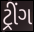
ટ્રીંગ